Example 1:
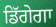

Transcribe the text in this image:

ਡਿੱਗੇਗਾ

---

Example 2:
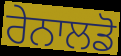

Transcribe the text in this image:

ਰੇਨਾਲਡੋ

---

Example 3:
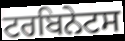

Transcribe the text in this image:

ਟਰਬਿਨੇਟਸ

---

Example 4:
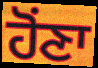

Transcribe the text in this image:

ਹੋਂਣਾ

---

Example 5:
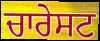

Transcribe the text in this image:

ਚਾਰੇਸਟ